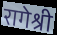
रागेश्री